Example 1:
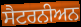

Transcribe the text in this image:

ਸੈਟਰਨੀਅਨ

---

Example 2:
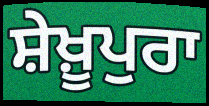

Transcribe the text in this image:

ਸ਼ੇਖ਼ੂਪੁਰਾ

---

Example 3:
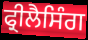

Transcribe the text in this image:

ਫ੍ਰੀਲੈਸਿੰਗ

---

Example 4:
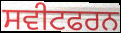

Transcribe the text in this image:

ਸਵੀਟਫਰਨ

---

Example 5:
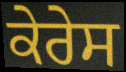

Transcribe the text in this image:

ਕੇਰੇਸ